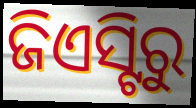
ଜିଏସ୍ଟିରୁ